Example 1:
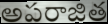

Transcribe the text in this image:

అపరాజిత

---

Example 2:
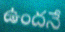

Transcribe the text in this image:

ఉందనే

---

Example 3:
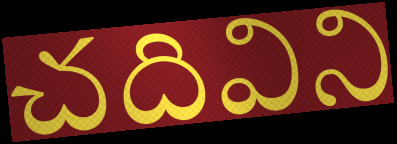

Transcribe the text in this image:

చదివిని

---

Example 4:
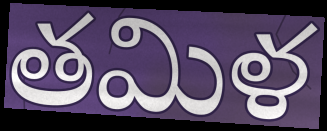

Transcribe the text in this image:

తమిళ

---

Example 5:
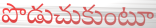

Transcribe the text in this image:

పొడుచుకుంటూ